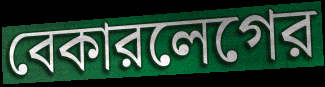
বেকারলেগের